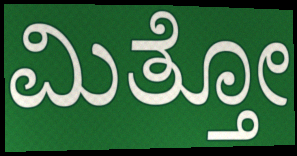
ಮಿತ್ತೋ